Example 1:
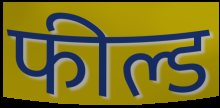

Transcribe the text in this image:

फील्ड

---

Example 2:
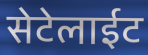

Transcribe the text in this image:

सेटेलाईट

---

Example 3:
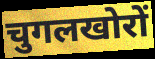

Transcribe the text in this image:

चुगलखोरों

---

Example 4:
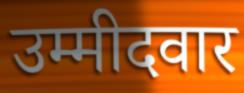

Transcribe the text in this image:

उम्मीदवार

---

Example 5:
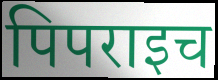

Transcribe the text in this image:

पिपराइच